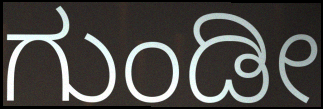
ಗುಂಡೀ